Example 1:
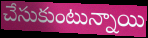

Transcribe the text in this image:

చేసుకుంటున్నాయి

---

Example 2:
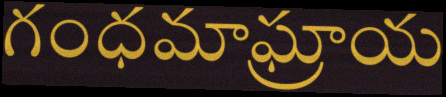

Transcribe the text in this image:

గంధమాఘ్రాయ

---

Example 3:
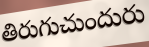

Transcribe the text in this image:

తిరుగుచుందురు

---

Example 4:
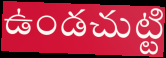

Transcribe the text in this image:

ఉండచుట్టి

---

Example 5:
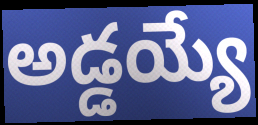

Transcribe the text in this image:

అడ్డయ్యే